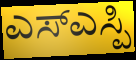
ಎಸ್ಎಸ್ಪಿ